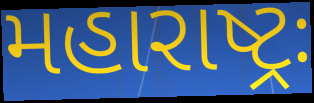
મહારાષ્ટ્રઃ